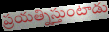
ప్రయత్నిస్తుంటాడు